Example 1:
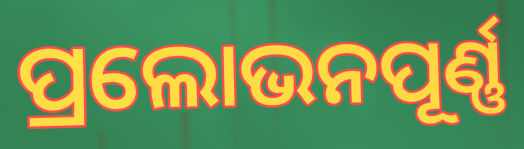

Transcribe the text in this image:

ପ୍ରଲୋଭନପୂର୍ଣ୍ଣ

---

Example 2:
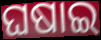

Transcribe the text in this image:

ଘଷାଇ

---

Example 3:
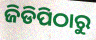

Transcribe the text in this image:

ଜିଡିପିଠାରୁ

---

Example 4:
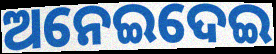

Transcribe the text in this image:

ଅନେଇଦେଇ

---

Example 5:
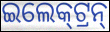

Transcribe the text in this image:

ଇଲେକ୍‌ଟ୍ରନ୍